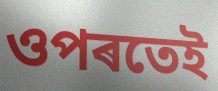
ওপৰতেই